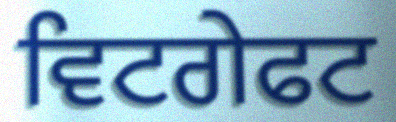
ਵਿਟਗੇਫਟ